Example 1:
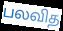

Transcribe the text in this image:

பலவித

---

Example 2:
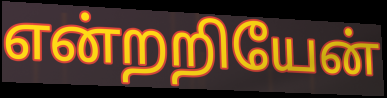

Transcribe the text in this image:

என்றறியேன்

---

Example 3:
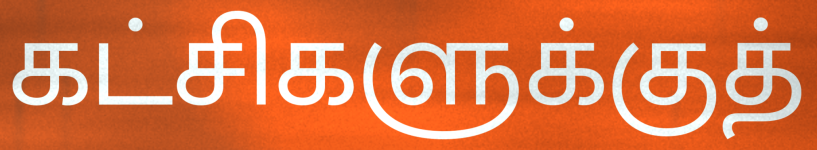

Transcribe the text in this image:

கட்சிகளுக்குத்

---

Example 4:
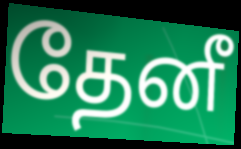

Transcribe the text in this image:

தேனீ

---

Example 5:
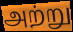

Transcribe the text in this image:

அற்று